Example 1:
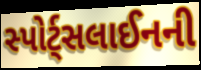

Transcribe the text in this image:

સ્પોર્ટ્સલાઈનની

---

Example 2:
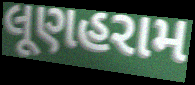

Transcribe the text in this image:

લૂણહરામ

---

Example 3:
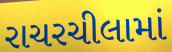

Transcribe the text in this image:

રાચરચીલામાં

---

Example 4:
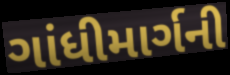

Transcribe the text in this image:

ગાંધીમાર્ગની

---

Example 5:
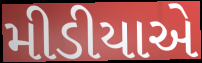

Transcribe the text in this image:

મીડીયાએ